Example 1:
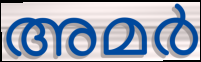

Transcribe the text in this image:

അമർ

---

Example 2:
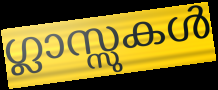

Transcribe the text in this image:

ഗ്ലാസ്സുകൾ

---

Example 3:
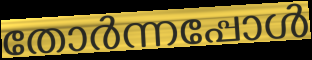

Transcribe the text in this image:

തോർന്നപ്പോൾ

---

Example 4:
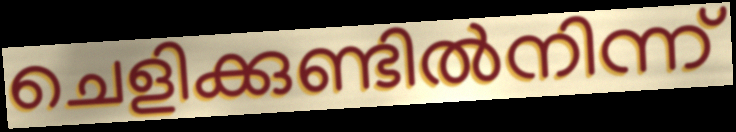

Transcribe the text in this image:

ചെളിക്കുണ്ടിൽനിന്ന്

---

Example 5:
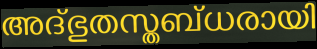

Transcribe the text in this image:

അദ്ഭുതസ്തബ്ധരായി